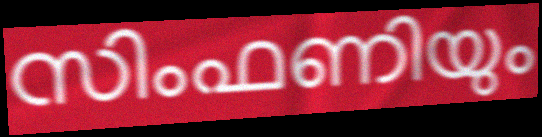
സിംഫണിയും